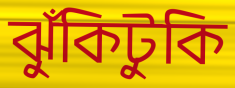
ঝুঁকিটুকি